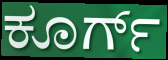
ಕೂರ್ಗ್